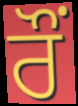
ਰੌਂ